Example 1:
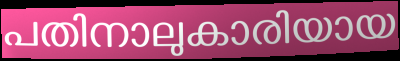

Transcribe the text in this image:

പതിനാലുകാരിയായ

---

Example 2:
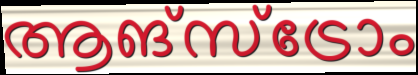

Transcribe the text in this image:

ആങ്സ്ട്രോം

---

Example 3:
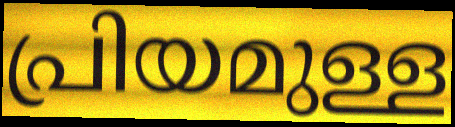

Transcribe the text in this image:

പ്രിയമുള്ള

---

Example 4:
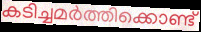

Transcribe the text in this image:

കടിച്ചമർത്തിക്കൊണ്ട്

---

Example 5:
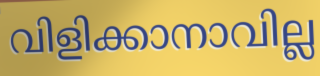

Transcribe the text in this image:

വിളിക്കാനാവില്ല